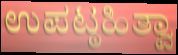
ಉಪಟ್ಠಹಿತ್ವಾ